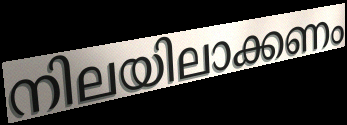
നിലയിലാക്കണം